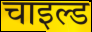
चाइल्ड